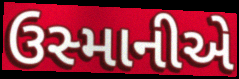
ઉસ્માનીએ